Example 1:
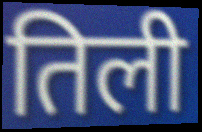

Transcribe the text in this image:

तिली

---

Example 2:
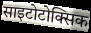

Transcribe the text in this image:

साइटोटोक्सिक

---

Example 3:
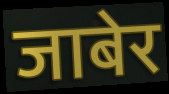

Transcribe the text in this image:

जाबेर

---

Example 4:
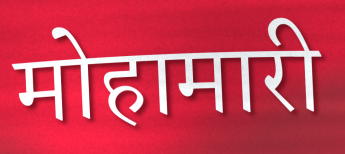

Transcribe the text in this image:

मोहामारी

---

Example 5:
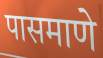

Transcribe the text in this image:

पासमाणे